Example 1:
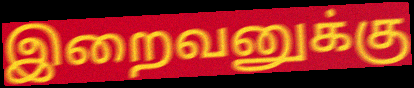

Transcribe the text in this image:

இறைவனுக்கு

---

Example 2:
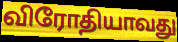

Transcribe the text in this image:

விரோதியாவது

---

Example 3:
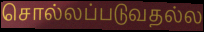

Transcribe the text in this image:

சொல்லப்படுவதல்ல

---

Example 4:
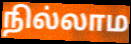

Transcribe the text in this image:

நில்லாம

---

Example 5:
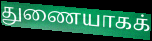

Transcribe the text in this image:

துணையாகக்